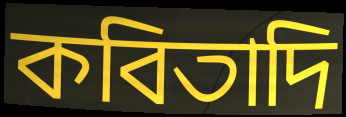
কবিতাদি